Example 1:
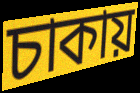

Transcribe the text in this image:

চাকায়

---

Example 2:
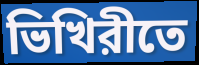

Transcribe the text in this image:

ভিখিরীতে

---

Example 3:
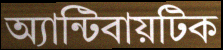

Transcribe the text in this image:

অ্যান্টিবায়টিক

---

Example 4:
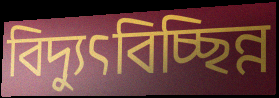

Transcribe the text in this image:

বিদ্যুৎবিচ্ছিন্ন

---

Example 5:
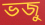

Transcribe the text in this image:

ভজু